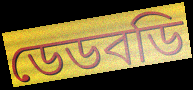
ডেডবডি